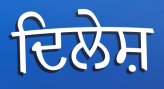
ਦਿਲੇਸ਼